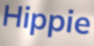
Hippie